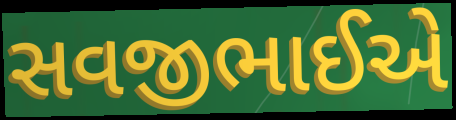
સવજીભાઈએ